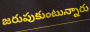
జరుపుకుంటున్నారు